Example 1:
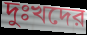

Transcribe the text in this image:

দুঃখদের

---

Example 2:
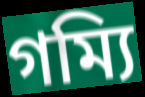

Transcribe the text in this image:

গম্যি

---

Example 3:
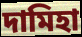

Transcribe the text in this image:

দামিহা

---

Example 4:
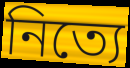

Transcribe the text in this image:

নিত্যে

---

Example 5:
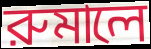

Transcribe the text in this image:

রুমালে